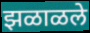
झळाळले